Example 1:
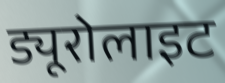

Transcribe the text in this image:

ड्यूरोलाइट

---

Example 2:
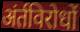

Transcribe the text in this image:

अंर्तविरोधों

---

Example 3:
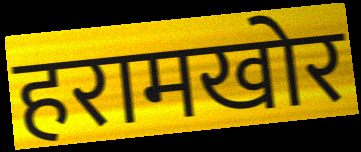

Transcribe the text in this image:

हरामखोर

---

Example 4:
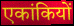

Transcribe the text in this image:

एकांकियों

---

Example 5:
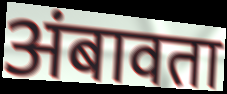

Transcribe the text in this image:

अंबावता